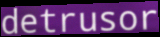
detrusor